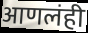
आणलंही